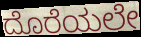
ದೊರೆಯಲೇ